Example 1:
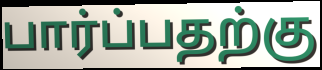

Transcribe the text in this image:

பார்ப்பதற்கு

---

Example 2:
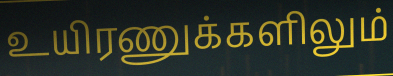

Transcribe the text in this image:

உயிரணுக்களிலும்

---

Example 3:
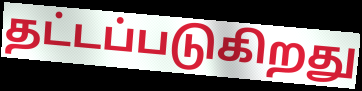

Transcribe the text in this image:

தட்டப்படுகிறது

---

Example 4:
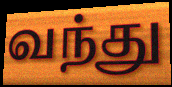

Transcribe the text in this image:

வந்து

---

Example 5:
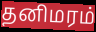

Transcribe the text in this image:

தனிமரம்